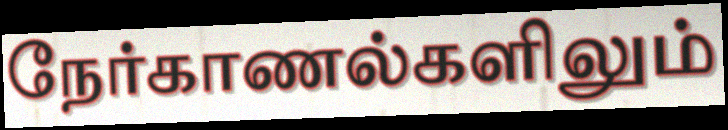
நேர்காணல்களிலும்